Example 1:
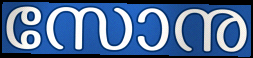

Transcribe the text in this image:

സോനു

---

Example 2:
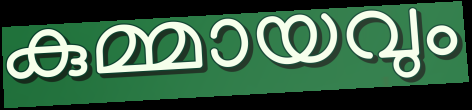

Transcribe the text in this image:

കുമ്മായവും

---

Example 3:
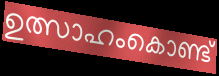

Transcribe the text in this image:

ഉത്സാഹംകൊണ്ട്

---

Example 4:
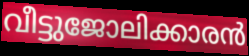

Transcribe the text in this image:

വീട്ടുജോലിക്കാരൻ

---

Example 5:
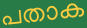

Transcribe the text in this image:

പതാക